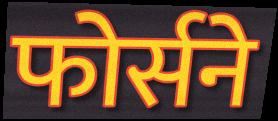
फोर्सने